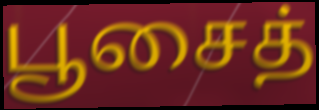
பூசைத்